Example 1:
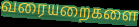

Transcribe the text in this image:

வரையறைகளை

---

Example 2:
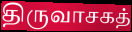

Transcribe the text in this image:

திருவாசகத்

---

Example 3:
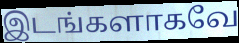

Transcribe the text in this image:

இடங்களாகவே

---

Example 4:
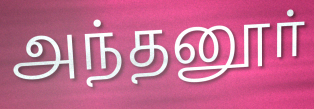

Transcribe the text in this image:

அந்தனூர்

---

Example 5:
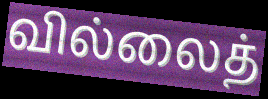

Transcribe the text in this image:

வில்லைத்